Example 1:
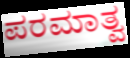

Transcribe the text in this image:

ಪರಮಾತ್ವ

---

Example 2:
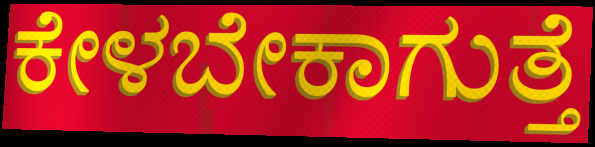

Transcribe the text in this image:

ಕೇಳಬೇಕಾಗುತ್ತೆ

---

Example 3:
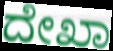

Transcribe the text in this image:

ದೇಖಾ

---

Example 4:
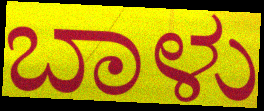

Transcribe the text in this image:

ಬಾಳು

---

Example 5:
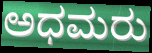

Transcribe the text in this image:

ಅಧಮರು